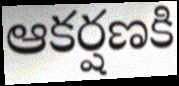
ఆకర్షణకి